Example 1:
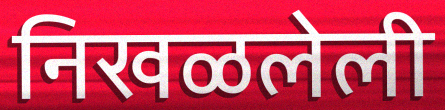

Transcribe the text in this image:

निखळलेली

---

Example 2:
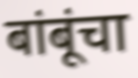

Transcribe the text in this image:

बांबूंचा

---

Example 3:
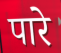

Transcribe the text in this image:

पारे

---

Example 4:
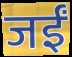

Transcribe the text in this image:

जईं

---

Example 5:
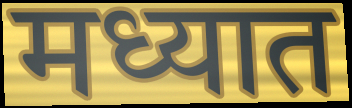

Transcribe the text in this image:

मध्यात